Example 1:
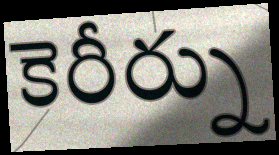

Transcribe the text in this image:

కెరీర్ను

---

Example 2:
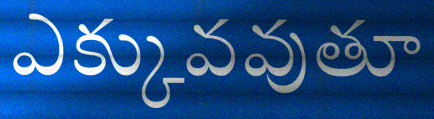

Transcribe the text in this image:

ఎక్కువవుతూ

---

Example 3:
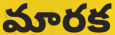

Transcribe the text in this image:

మారక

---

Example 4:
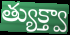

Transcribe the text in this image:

త్యుక్త్వా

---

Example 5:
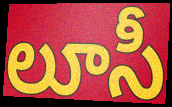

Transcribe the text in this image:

లూసీ